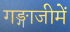
गङ्गाजीमें